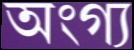
অংগ্য